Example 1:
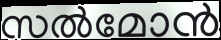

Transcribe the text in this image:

സൽമോൻ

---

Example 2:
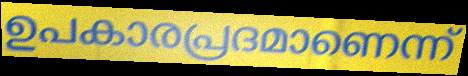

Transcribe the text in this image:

ഉപകാരപ്രദമാണെന്ന്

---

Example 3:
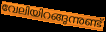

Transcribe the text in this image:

വേലിയിറങ്ങുന്നുണ്ട്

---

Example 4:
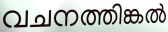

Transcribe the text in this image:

വചനത്തിങ്കൽ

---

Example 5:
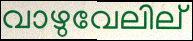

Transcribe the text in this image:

വാഴുവേലില്